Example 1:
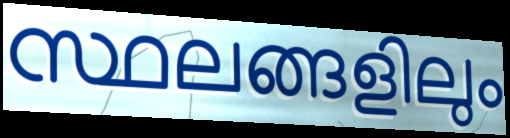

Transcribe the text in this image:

സ്ഥലങ്ങളിലും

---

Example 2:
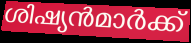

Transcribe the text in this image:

ശിഷ്യൻമാർക്ക്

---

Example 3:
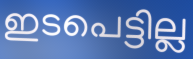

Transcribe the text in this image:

ഇടപെട്ടില്ല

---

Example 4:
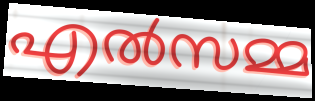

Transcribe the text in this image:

എൽസമ്മ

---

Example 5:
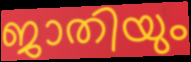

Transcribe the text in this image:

ജാതിയും